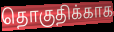
தொகுதிக்காக